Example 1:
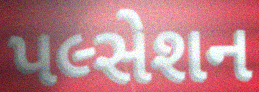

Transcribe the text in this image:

પલ્સેશન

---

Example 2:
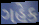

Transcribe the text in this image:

ગહેક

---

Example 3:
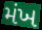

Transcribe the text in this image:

મંખ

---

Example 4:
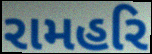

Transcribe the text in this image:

રામહરિ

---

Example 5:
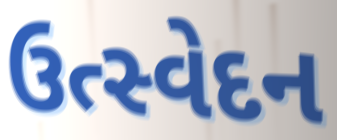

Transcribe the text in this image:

ઉત્સ્વેદન